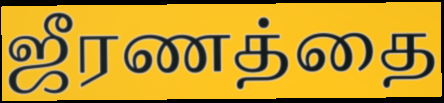
ஜீரணத்தை